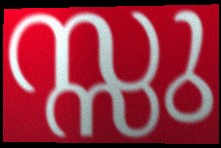
സ്സു